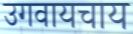
उगवायचाय